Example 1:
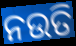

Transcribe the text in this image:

ନଉତି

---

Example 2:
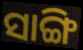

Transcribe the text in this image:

ସାଙ୍ଗି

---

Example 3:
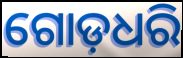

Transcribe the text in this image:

ଗୋଡ଼ଧରି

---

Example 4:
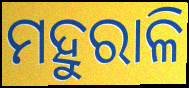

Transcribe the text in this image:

ମହୁରାଳି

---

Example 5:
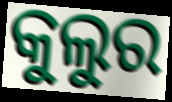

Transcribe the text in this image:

କୁଲୁର